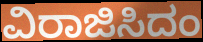
ವಿರಾಜಿಸಿದಂ